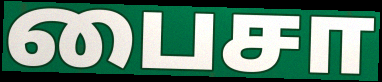
பைசா